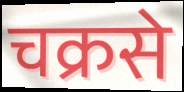
चक्रसे